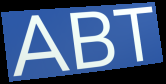
ABT